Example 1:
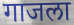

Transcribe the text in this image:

गाजला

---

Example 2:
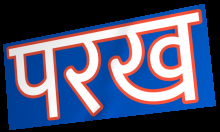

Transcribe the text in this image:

परख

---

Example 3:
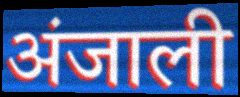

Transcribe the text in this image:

अंजाली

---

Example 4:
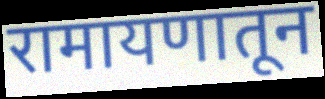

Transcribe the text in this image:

रामायणातून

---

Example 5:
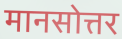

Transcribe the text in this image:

मानसोत्तर